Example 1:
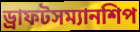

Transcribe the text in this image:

ড্রাফটসম্যানশিপ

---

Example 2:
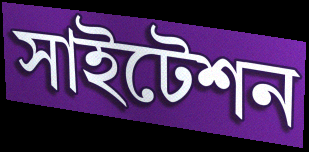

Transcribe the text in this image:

সাইটেশন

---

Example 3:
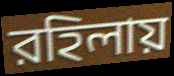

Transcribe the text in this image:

রহিলায়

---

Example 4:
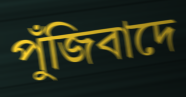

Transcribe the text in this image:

পুঁজিবাদে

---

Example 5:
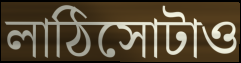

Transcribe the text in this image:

লাঠিসোটাও